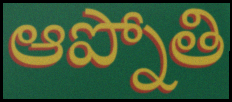
ఆప్నోతి